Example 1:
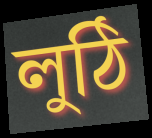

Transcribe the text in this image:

লুঠি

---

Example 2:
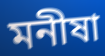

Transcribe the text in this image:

মনীষা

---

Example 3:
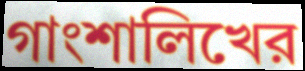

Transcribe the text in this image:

গাংশালিখের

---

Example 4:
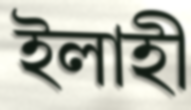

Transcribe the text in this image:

ইলাহী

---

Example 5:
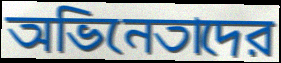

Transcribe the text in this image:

অভিনেতাদের